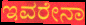
ಇವರೇನಾ